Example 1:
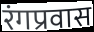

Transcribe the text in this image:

रंगप्रवास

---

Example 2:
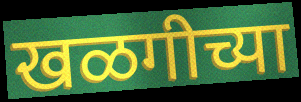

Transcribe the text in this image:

खळगीच्या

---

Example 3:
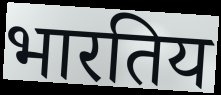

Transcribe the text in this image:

भारतिय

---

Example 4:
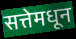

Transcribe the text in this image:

सत्तेमधून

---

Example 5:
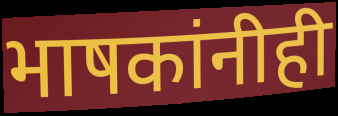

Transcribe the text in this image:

भाषकांनीही